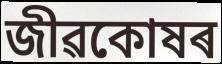
জীৱকোষৰ